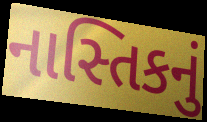
નાસ્તિકનું